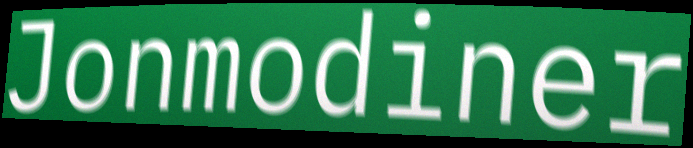
Jonmodiner